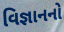
વિજ્ઞાનનો